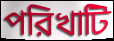
পরিখাটি